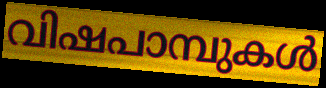
വിഷപാമ്പുകൾ